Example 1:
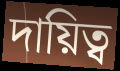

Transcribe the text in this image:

দায়িত্ব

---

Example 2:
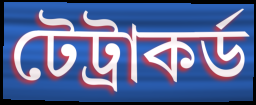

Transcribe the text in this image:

টেট্ৰাকৰ্ড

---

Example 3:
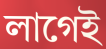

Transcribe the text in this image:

লাগেই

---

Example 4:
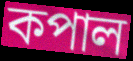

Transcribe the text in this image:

কপাল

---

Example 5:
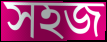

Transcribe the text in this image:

সহজ